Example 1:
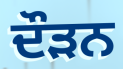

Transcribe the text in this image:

ਦੌਡ਼ਨ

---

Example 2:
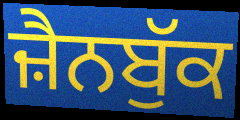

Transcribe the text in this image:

ਜ਼ੈਨਬੁੱਕ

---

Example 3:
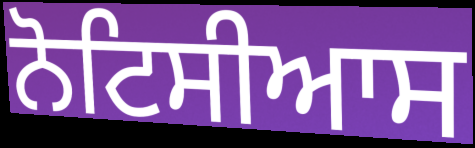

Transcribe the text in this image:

ਨੋਟਿਸੀਆਸ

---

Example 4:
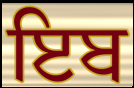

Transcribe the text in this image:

ਇਬ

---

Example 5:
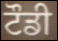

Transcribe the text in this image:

ਟੌਡੀ